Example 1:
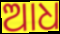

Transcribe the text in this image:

ଆଧ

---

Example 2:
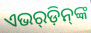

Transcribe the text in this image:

ଏଭର୍‍ଡ଼ିନ୍‌ଙ୍କ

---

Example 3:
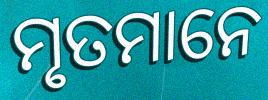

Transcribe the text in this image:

ମୃତମାନେ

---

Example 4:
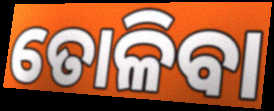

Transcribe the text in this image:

ତୋଳିବା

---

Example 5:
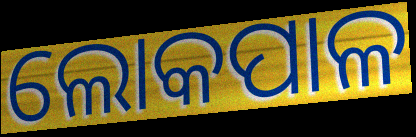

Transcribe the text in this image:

ଲୋକପାଳ